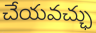
చేయవచ్ఛు